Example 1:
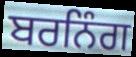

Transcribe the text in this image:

ਬਰਨਿੰਗ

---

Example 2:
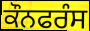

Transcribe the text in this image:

ਕੌਨਫਰੰਸ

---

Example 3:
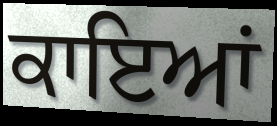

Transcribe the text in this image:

ਕਾਇਆਂ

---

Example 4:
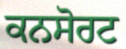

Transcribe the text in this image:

ਕਨਸੋਰਟ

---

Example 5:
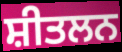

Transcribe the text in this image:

ਸ਼ੀਤਲਨ